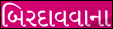
બિરદાવવાના